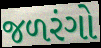
જળરંગો